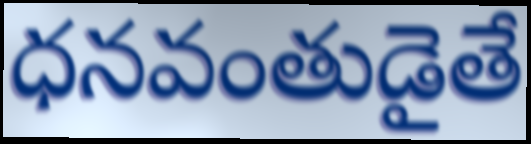
ధనవంతుడైతే